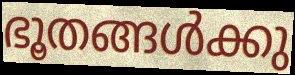
ഭൂതങ്ങൾക്കു